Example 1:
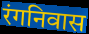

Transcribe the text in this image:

रंगनिवास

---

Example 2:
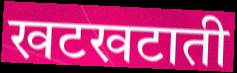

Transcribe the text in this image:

खटखटाती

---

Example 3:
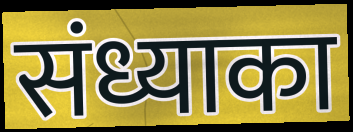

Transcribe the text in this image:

संध्याका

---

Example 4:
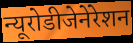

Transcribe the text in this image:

न्यूरोडीजेनेरेशन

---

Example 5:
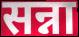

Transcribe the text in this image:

सन्ना